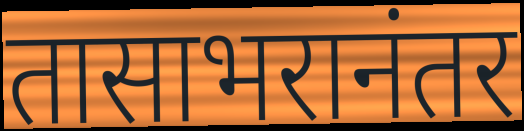
तासाभरानंतर